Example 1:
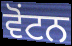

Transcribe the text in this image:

ਵੋਂਟਨ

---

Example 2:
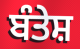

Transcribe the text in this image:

ਬੰਤੇਸ਼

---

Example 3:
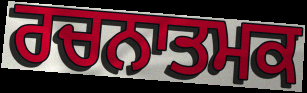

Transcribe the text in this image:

ਰਚਨਾਤਮਕ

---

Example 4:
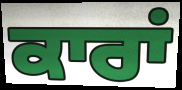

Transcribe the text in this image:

ਕਾਰਾਂ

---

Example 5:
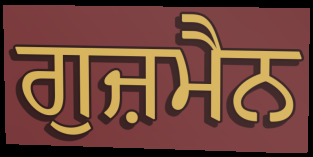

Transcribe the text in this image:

ਗੁਜ਼ਮੈਨ